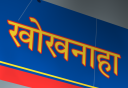
खोखनाहा